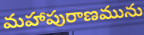
మహాపురాణమును